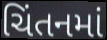
ચિંતનમાં